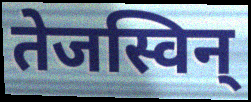
तेजस्विन्